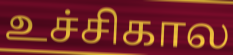
உச்சிகால